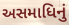
અસમાધિનું